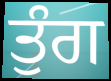
ਤੁੰਗ